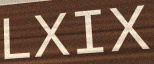
LXIX